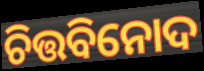
ଚିତ୍ତବିନୋଦ